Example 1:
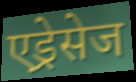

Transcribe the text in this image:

एड्रेसेज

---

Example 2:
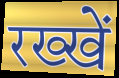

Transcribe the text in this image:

रख्खें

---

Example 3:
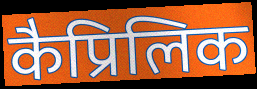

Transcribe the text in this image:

कैप्रिलिक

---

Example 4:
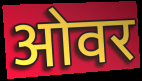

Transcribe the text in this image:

ओवर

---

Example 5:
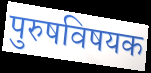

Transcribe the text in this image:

पुरुषविषयक